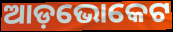
ଆଡ଼ଭୋକେଟ